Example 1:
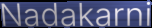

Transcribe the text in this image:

Nadakarni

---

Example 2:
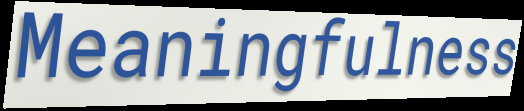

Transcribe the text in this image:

Meaningfulness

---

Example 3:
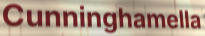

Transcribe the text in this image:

Cunninghamella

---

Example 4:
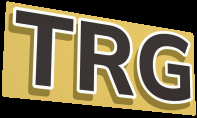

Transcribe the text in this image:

TRG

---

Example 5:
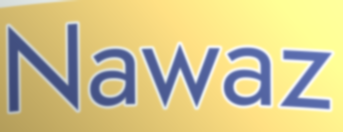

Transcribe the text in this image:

Nawaz